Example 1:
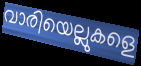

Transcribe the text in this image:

വാരിയെല്ലുകളെ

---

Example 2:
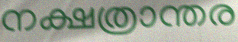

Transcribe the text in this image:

നക്ഷത്രാന്തര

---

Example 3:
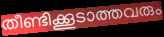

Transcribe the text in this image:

തീണ്ടിക്കൂടാത്തവരും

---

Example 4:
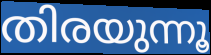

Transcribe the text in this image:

തിരയുന്നൂ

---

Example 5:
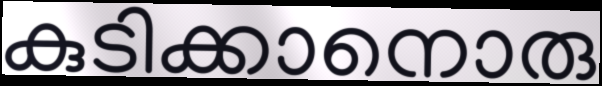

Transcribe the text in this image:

കുടിക്കാനൊരു